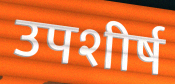
उपशीर्ष